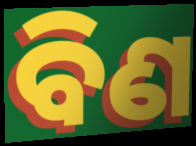
ବିଣ